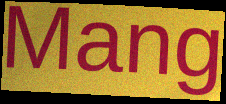
Mang